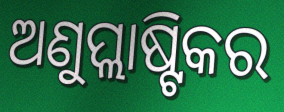
ଅଣୁପ୍ଲାଷ୍ଟିକର